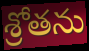
శ్రోతను